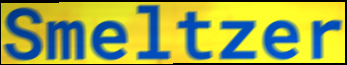
Smeltzer